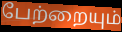
பேற்றையும்